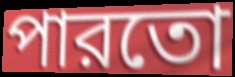
পারতো